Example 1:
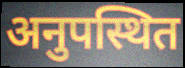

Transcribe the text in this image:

अनुपस्थित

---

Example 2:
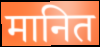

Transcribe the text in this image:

मानित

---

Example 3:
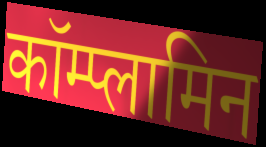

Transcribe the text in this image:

कॉम्प्लामिन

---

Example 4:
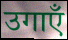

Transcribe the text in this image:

उगाएँ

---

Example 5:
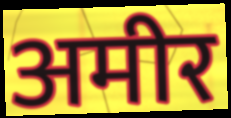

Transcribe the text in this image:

अमीर